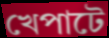
খেপাটে